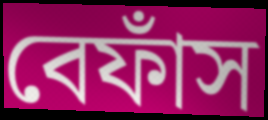
বেফাঁস